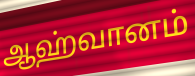
ஆஹ்வானம்